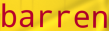
barren